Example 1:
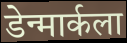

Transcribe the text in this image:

डेन्मार्कला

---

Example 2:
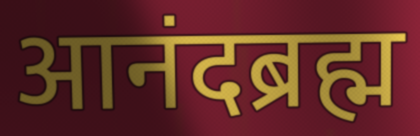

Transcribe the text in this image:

आनंदब्रह्म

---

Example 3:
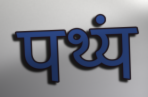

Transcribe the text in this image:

पथ्यं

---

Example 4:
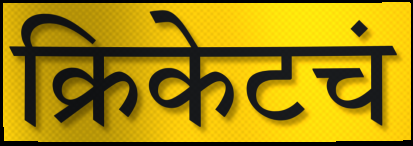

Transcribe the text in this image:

क्रिकेटचं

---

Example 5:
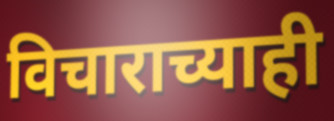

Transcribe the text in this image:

विचाराच्याही